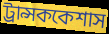
ট্রান্সককেশাস